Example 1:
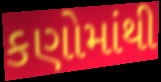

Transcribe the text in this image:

કણોમાંથી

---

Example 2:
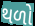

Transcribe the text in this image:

થળો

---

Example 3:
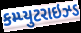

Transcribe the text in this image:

કમ્પ્યુટરાઇઝ્ડ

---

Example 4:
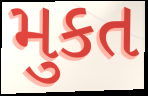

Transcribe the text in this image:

મુકત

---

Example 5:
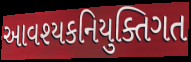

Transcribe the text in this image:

આવશ્યકનિયુક્તિગત